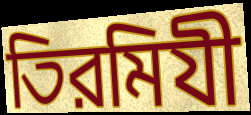
তিরমিযী